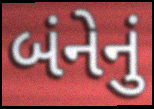
બંનેનું